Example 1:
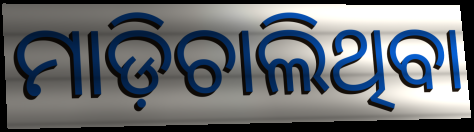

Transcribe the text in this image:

ମାଡ଼ିଚାଲିଥିବା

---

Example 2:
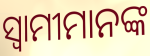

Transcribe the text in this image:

ସ୍ବାମୀମାନଙ୍କ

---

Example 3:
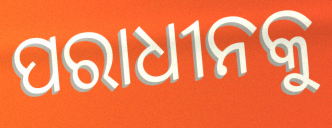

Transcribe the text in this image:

ପରାଧୀନକୁ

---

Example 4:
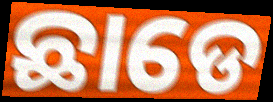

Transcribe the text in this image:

ଛାଡେ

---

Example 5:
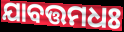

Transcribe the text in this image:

ଯାବତ୍ତମଧଃ